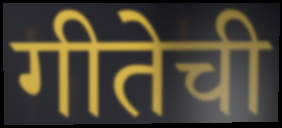
गीतेची